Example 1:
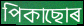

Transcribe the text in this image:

পিকাছোৰ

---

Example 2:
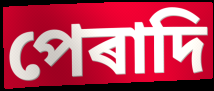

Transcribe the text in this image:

পেৰাদি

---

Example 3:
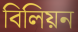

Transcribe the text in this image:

বিলিয়ন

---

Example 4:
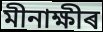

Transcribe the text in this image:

মীনাক্ষীৰ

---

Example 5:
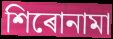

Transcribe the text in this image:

শিৰোনামা